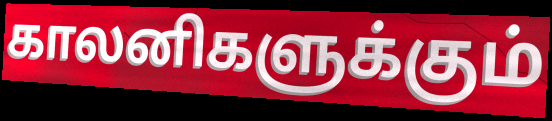
காலனிகளுக்கும்